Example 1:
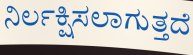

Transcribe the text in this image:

ನಿರ್ಲಕ್ಷಿಸಲಾಗುತ್ತದೆ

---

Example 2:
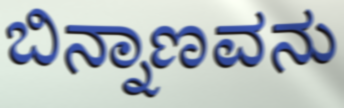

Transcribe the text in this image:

ಬಿನ್ನಾಣವನು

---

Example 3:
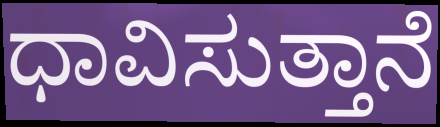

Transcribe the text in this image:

ಧಾವಿಸುತ್ತಾನೆ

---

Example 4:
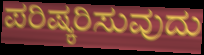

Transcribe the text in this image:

ಪರಿಷ್ಕರಿಸುವುದು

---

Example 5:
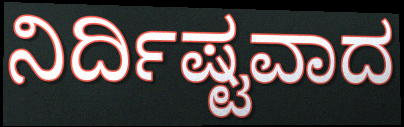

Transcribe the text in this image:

ನಿರ್ದಿಷ್ಟವಾದ